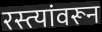
रस्त्यांवरून